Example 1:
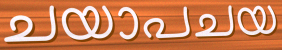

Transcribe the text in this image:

ചയാപചയ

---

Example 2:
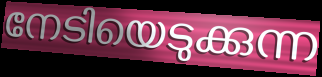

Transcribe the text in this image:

നേടിയെടുക്കുന്ന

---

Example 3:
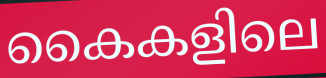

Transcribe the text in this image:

കൈകളിലെ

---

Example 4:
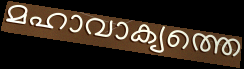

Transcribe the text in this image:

മഹാവാക്യത്തെ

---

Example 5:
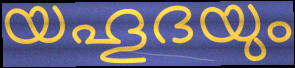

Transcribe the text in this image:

യഹൂദയും